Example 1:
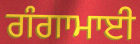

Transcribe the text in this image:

ਗੰਗਾਮਾਈ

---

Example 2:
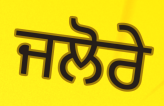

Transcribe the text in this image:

ਜਲੋਰੇ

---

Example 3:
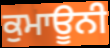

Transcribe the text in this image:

ਕੁਮਾਊਨੀ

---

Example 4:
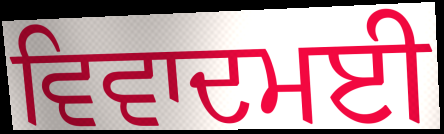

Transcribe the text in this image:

ਵਿਵਾਦਮਈ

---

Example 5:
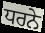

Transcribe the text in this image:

ਧਰਨੇ